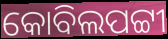
କୋବିଲପଟ୍ଟୀ